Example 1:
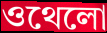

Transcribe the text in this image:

ওথেলো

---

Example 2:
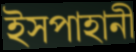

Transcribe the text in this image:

ইসপাহানী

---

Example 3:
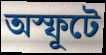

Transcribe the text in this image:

অস্ফূটে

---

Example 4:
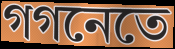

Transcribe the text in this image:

গগনেতে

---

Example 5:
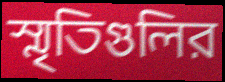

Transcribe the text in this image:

স্মৃতিগুলির